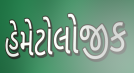
હેમેટોલોજીક